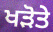
ਖੜੋਤੇ